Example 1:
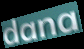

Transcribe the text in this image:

dana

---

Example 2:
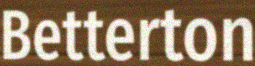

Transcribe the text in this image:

Betterton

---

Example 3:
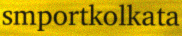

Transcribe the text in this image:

smportkolkata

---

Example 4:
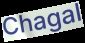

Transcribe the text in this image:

Chagal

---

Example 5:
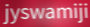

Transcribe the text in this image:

jyswamiji